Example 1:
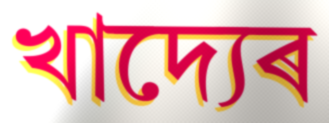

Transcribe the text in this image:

খাদ্যেৰ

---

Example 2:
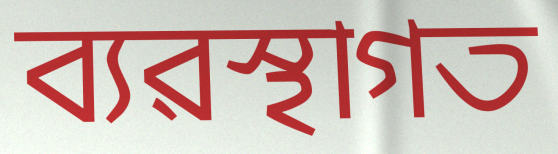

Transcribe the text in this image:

ব্যৱস্থাগত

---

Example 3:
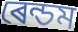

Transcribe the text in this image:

ৰেন্ডম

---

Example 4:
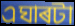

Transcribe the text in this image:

এঘাৰটা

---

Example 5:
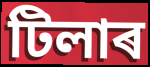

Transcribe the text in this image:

টিলাৰ